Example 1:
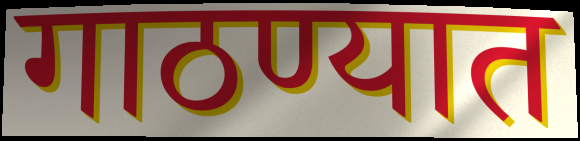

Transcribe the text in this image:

गाठण्यात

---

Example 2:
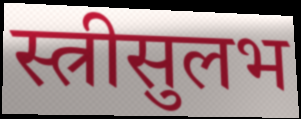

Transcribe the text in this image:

स्त्रीसुलभ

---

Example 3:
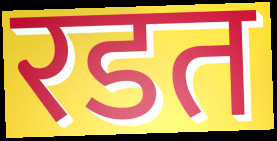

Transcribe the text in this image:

रडत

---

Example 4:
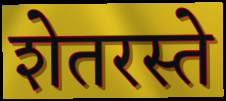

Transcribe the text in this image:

शेतरस्ते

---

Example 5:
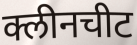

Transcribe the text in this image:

क्लीनचीट